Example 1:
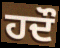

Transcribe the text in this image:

ਹਦੌ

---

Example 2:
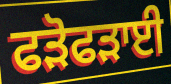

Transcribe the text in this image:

ਫੜੋਫੜਾਈ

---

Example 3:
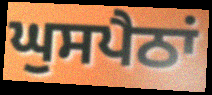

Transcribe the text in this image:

ਘੁਸਪੈਠਾਂ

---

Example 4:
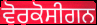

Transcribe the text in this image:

ਵੋਰਕੋਸੀਗਨ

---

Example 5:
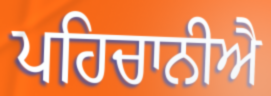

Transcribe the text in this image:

ਪਹਿਚਾਨੀਐ